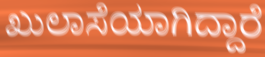
ಖುಲಾಸೆಯಾಗಿದ್ದಾರೆ